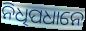
ନିଧିପଧାନେ